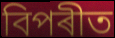
বিপৰীত